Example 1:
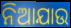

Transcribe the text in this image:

ନିଆଯାଉ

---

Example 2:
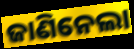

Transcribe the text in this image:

ଜାଣିନେଲା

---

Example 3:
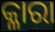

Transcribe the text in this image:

କ୍ଳାରା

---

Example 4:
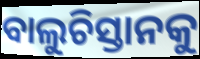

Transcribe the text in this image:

ବାଲୁଚିସ୍ତାନକୁ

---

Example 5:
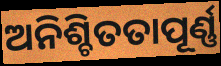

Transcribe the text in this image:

ଅନିଶ୍ଚିତତାପୂର୍ଣ୍ଣ